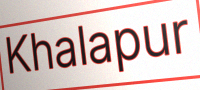
Khalapur